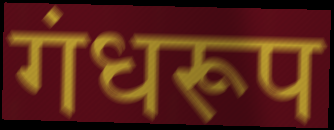
गंधरूप